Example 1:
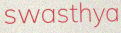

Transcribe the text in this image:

swasthya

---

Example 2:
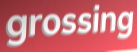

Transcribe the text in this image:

grossing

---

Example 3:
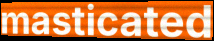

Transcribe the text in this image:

masticated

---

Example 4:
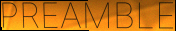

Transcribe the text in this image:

PREAMBLE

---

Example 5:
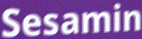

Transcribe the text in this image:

Sesamin